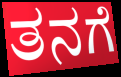
ತನಗೆ